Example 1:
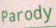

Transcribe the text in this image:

Parody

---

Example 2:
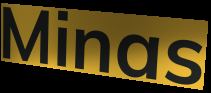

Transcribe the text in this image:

Minas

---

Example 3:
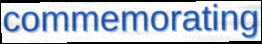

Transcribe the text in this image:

commemorating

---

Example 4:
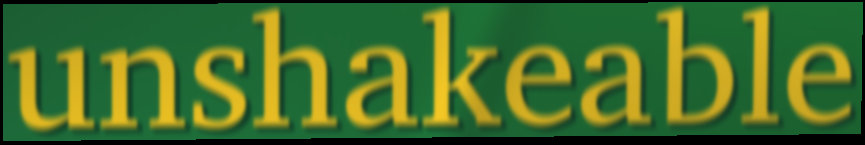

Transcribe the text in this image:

unshakeable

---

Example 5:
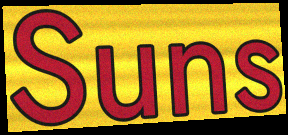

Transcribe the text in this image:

Suns